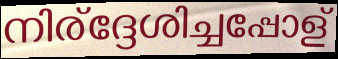
നിര്ദ്ദേശിച്ചപ്പോള്